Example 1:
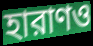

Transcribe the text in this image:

হারাণও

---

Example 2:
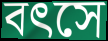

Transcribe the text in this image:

বৎসে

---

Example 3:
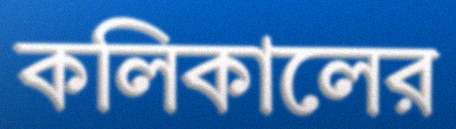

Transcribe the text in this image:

কলিকালের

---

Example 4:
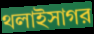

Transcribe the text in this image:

থলাইসাগর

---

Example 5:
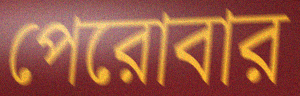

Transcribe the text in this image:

পেরোবার